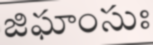
జిఘాంసుః